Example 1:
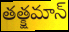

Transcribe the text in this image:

తత్క్షమాన్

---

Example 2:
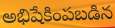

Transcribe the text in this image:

అభిషేకింపబడిన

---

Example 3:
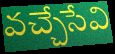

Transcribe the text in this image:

వచ్చేసేవి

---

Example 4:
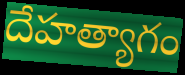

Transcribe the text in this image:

దేహత్యాగం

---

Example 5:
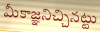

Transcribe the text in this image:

మీకాజ్ఞనిచ్చినట్టు